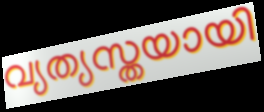
വ്യത്യസ്തയായി